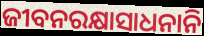
ଜୀବନରକ୍ଷାସାଧନାନି